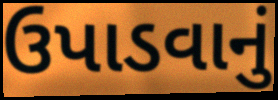
ઉપાડવાનું